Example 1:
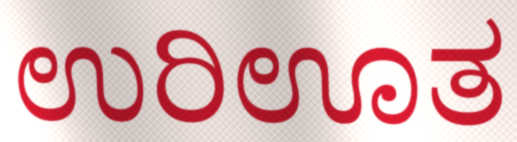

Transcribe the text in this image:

ಉರಿಊತ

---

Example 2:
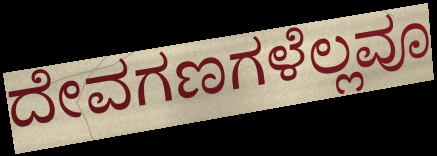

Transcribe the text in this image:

ದೇವಗಣಗಳೆಲ್ಲವೂ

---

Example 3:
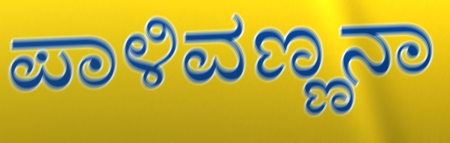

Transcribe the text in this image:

ಪಾಳಿವಣ್ಣನಾ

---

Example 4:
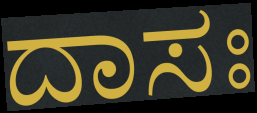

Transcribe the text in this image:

ದಾಸಃ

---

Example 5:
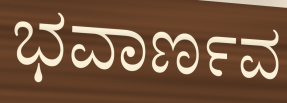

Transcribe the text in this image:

ಭವಾರ್ಣವ